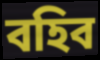
বহিব